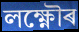
লক্ষ্ণৌৰ